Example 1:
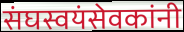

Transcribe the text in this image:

संघस्वयंसेवकांनी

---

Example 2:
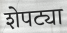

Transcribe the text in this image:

शेपट्या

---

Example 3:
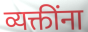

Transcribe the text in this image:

व्यक्तींना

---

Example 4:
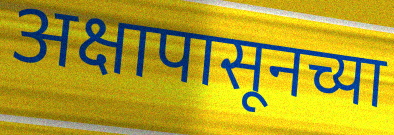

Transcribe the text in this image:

अक्षापासूनच्या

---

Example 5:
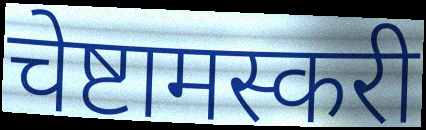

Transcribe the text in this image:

चेष्टामस्करी